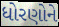
ધોરણોને